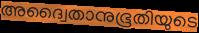
അദ്വൈതാനുഭൂതിയുടെ